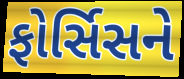
ફોર્સિસને